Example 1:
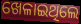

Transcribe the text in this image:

ଖେଳାଇଥିଲେ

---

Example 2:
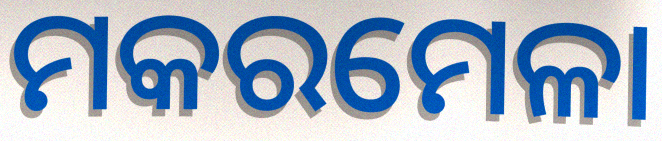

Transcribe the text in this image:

ମକରମେଳା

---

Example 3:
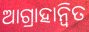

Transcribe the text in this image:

ଆଗ୍ରାହାନ୍ୱିତ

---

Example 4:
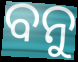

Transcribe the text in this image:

ବନୁ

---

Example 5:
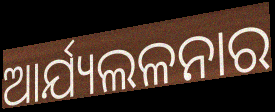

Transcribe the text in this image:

ଆର୍ଯ୍ୟଲଳନାର